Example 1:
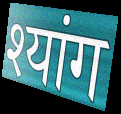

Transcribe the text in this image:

श्यांग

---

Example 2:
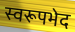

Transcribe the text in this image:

स्वरूपभेद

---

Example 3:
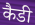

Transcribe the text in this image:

कैडी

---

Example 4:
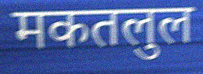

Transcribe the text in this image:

मकतलुल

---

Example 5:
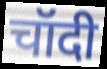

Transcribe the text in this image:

चॉदी